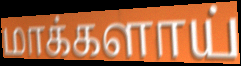
மாக்களாய்